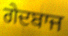
ਗੇਦਬਾਜ